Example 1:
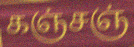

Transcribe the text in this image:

கஞ்சஞ்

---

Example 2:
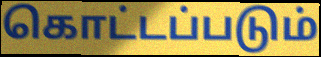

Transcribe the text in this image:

கொட்டப்படும்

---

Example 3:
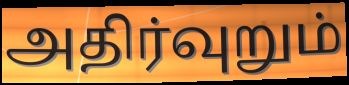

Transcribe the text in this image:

அதிர்வுறும்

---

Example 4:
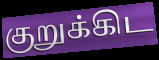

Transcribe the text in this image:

குறுக்கிட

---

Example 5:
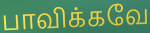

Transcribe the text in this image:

பாவிக்கவே